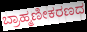
ಬ್ರಾಹ್ಮಣೀಕರಣದ